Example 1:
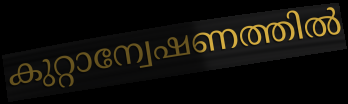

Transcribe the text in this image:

കുറ്റാന്വേഷണത്തിൽ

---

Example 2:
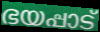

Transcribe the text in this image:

ഭയപ്പാട്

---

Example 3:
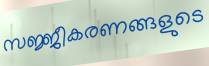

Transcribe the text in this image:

സജ്ജീകരണങ്ങളുടെ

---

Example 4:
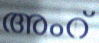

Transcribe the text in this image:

അംറ്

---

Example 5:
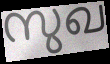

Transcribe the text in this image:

സുഖ